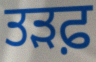
ਤੜਫ਼